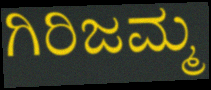
ಗಿರಿಜಮ್ಮ